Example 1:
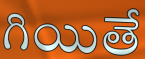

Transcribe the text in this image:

గియితే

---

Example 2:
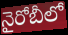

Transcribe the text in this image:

నైరోబీలో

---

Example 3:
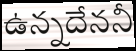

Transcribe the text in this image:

ఉన్నదేననీ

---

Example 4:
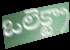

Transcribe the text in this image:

ఒలెక్ట్రా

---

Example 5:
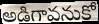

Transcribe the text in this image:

అడిగావనుకో